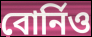
বোৰ্নিও